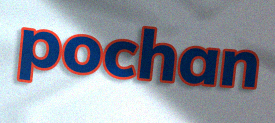
pochan